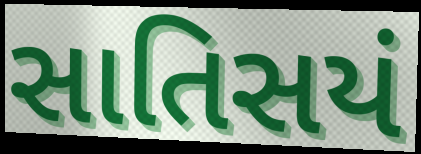
સાતિસયં